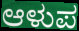
ಆಳುಪ